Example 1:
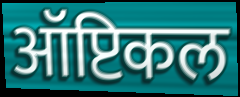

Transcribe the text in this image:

ऑप्टिकल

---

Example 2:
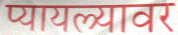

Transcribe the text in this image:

प्यायल्यावर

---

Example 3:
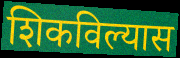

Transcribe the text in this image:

शिकविल्यास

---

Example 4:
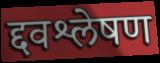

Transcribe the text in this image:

द्दवश्लेषण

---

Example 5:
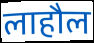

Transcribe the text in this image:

लाहौल